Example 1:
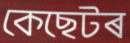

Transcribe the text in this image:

কেছেটৰ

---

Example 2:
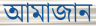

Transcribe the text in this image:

আমাজান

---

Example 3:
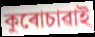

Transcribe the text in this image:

কুৰোচাৱাই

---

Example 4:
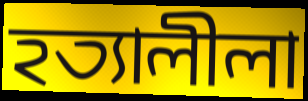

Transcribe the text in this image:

হত্যালীলা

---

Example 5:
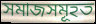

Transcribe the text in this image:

সমাজসমূহত